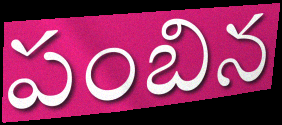
పంబిన